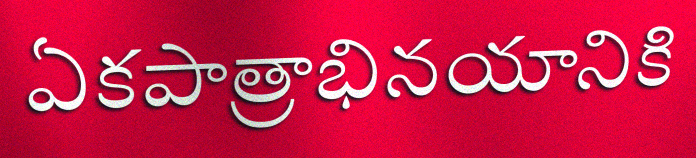
ఏకపాత్రాభినయానికి